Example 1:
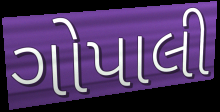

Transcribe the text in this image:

ગોપાલી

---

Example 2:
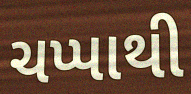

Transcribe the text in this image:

ચપ્પાથી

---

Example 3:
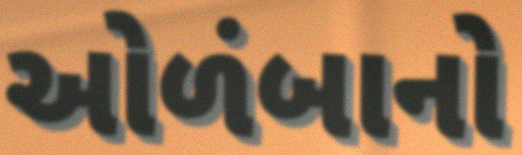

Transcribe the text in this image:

ઓળંબાનો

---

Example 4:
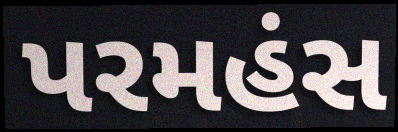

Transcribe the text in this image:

પરમહંસ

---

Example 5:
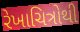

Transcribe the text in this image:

રેખાચિત્રોથી